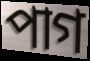
পাগ